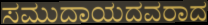
ಸಮುದಾಯದವರಾದ